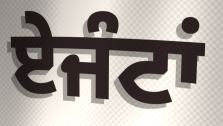
ਏਜੰਟਾਂ